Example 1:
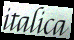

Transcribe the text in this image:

italica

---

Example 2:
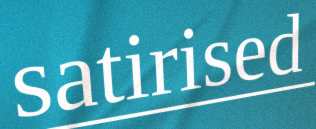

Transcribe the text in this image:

satirised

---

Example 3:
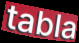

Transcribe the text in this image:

tabla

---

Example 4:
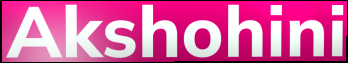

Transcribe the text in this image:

Akshohini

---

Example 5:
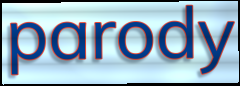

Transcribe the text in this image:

parody